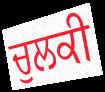
ਚੁਲਕੀ